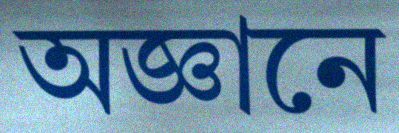
অজ্ঞানে